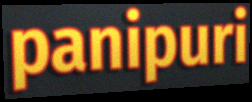
panipuri